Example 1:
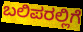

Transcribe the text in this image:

ಬಲಿಪರಲ್ಲಿಗೆ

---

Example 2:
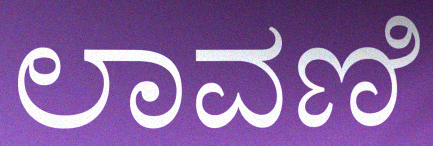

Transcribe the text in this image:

ಲಾವಣಿ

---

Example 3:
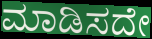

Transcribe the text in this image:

ಮಾಡಿಸದೇ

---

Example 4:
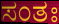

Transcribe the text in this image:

ಸಂತಃ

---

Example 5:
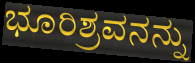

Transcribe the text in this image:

ಭೂರಿಶ್ರವನನ್ನು